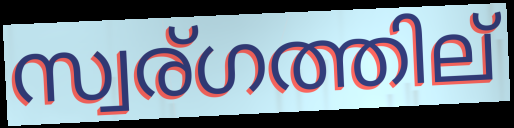
സ്വര്ഗത്തില്